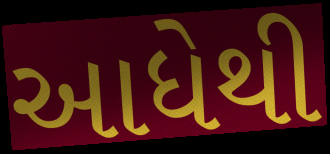
આધેથી